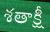
శతాక్షీ